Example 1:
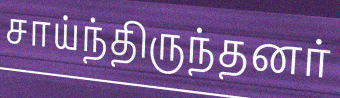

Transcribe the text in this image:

சாய்ந்திருந்தனர்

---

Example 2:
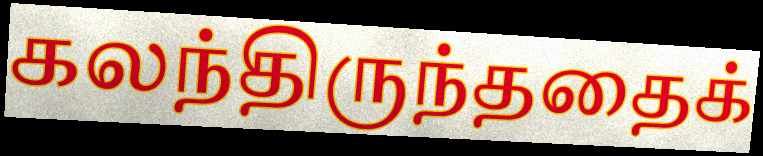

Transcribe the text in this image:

கலந்திருந்ததைக்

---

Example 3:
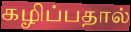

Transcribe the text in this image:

கழிப்பதால்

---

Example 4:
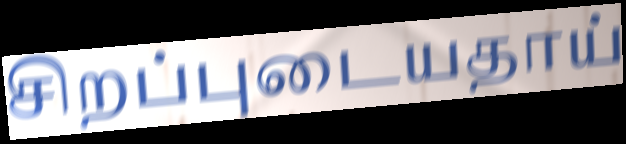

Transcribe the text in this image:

சிறப்புடையதாய்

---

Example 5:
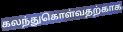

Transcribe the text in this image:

கலந்துகொள்வதற்காக